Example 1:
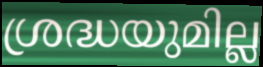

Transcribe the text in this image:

ശ്രദ്ധയുമില്ല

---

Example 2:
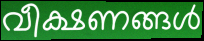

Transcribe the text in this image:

വീക്ഷണങ്ങൾ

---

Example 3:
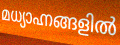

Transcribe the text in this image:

മധ്യാഹ്നങ്ങളിൽ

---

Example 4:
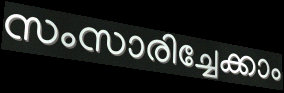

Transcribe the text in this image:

സംസാരിച്ചേക്കാം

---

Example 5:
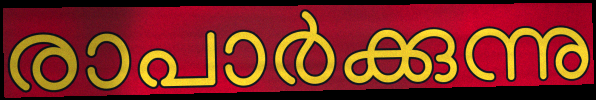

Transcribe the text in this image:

രാപാർക്കുന്നു